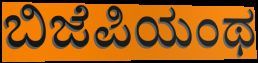
ಬಿಜೆಪಿಯಂಥ